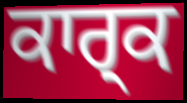
ਕਾਰ੍ਕ